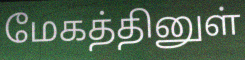
மேகத்தினுள்